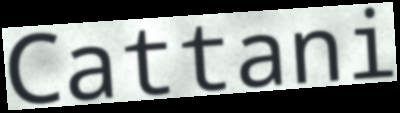
Cattani